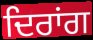
ਦਿਰਾਂਗ